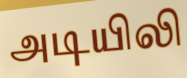
அடியிலி